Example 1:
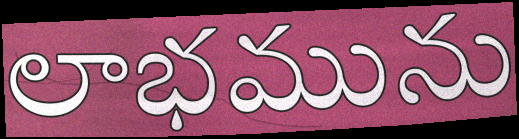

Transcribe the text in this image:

లాభమును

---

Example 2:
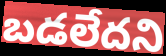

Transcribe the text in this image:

బడలేదని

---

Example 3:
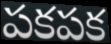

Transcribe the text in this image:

పకపక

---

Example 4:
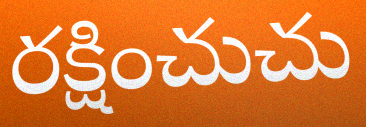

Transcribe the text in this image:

రక్షించుచు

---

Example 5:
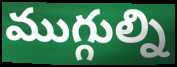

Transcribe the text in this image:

ముగ్గుల్ని